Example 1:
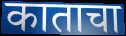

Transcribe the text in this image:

काताचा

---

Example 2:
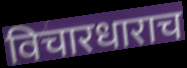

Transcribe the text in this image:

विचारधाराच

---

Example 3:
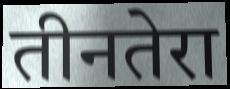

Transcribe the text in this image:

तीनतेरा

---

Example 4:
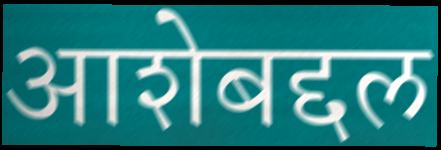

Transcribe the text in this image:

आशेबद्दल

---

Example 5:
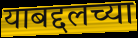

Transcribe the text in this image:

याबद्दलच्या